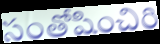
సంతోషించిరి